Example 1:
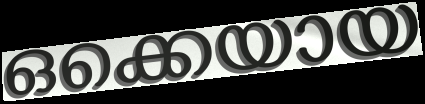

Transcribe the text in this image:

ഒക്കെയായ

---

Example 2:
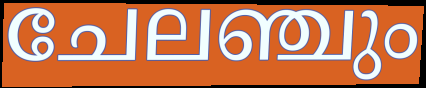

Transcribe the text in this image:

ചേലഞ്ചും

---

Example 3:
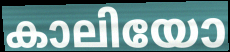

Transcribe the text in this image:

കാലിയോ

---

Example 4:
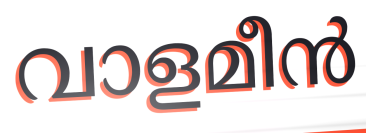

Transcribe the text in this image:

വാളമീൻ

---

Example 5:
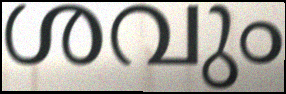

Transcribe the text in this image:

ശവും